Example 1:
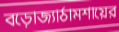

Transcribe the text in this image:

বড়োজ্যাঠামশায়ের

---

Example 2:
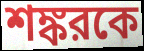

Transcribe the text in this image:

শঙ্করকে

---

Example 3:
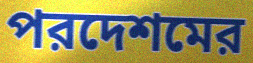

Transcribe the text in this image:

পরদেশমের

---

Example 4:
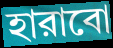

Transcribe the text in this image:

হারাবো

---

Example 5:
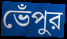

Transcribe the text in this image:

ভেঁপুর